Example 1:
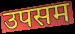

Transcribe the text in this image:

उपसम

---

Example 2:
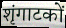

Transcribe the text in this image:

शृंगाटकों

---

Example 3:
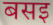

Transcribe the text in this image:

बसइ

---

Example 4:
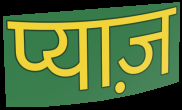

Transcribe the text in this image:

प्याज़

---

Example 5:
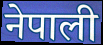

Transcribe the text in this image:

नेपाली